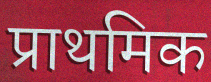
प्राथमिक